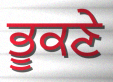
ਭੂਕਣੇ